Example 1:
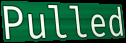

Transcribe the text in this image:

Pulled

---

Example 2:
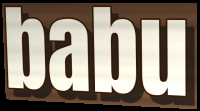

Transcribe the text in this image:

babu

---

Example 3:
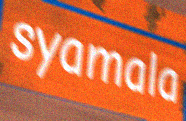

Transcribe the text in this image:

syamala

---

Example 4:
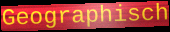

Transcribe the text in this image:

Geographisch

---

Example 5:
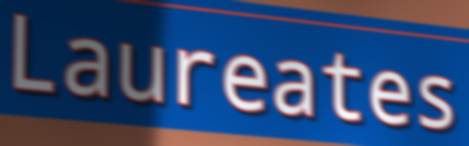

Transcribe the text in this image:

Laureates